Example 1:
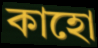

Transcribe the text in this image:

কাহো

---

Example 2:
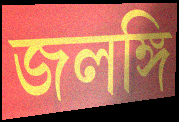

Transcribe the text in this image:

জলঙ্গি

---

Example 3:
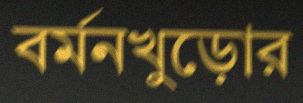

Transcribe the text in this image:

বর্মনখুড়োর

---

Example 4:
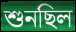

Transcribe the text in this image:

শুনছিল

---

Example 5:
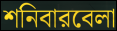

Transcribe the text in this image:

শনিবারবেলা